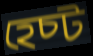
হেচ্ট